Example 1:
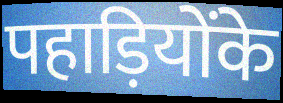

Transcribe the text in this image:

पहाड़ियोंके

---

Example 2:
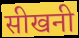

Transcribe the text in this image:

सीखनी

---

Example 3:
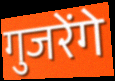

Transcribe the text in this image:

गुजरेंगे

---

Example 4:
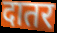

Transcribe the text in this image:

दातर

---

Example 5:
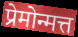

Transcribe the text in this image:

प्रेमोन्मत्त